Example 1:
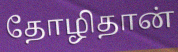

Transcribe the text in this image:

தோழிதான்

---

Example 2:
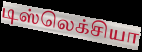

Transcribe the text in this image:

டிஸ்லெக்சியா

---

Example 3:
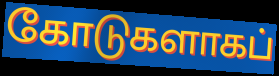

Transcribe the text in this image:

கோடுகளாகப்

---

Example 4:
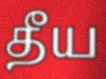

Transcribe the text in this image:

தீய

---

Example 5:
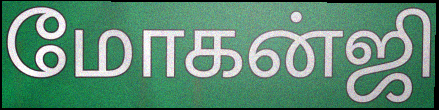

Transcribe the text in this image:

மோகன்ஜி